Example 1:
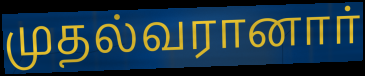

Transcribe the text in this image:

முதல்வரானார்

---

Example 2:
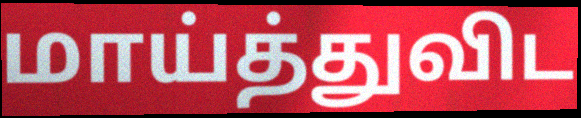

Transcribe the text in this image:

மாய்த்துவிட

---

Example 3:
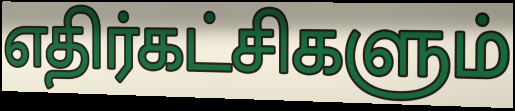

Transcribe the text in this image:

எதிர்கட்சிகளும்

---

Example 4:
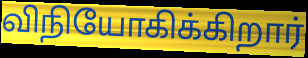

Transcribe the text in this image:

விநியோகிக்கிறார்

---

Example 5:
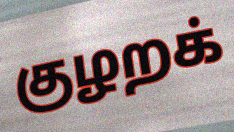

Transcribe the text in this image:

குழறக்